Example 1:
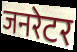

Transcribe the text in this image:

जनरेटर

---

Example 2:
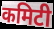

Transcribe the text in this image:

कमिटी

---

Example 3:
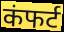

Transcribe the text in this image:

कंफर्ट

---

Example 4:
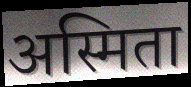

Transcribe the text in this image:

अस्मिता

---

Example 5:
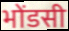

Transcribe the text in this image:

भोंडसी